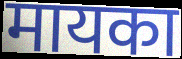
मायका